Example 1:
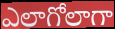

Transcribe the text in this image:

ఎలాగోలాగా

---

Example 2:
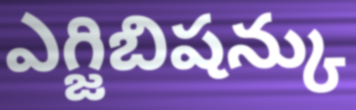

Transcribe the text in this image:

ఎగ్జిబిషన్కు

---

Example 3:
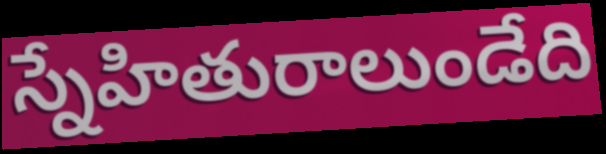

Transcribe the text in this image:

స్నేహితురాలుండేది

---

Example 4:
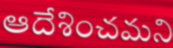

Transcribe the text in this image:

ఆదేశించమని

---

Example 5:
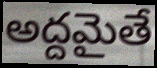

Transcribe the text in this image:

అద్దమైతే